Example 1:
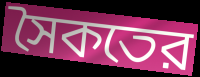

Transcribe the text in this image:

সৈকতের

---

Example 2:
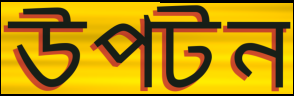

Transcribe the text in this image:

উপটন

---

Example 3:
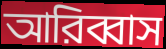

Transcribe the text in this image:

আরিব্বাস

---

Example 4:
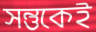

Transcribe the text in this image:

সন্তুকেই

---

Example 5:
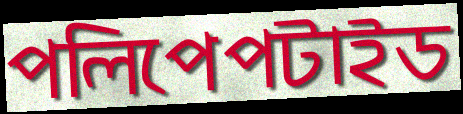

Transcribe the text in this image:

পলিপেপটাইড